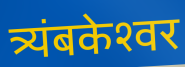
त्र्यंबकेश्वर